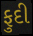
ફુદી